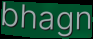
bhagn